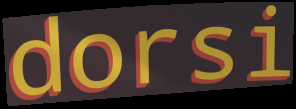
dorsi